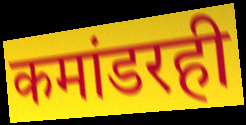
कमांडरही